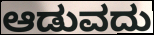
ಆಡುವದು